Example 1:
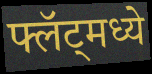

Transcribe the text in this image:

फ्लॅट्मध्ये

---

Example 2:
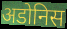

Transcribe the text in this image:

अडोनिस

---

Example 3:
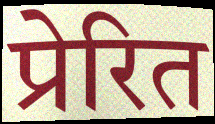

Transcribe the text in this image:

प्रेरित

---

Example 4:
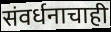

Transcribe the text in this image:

संवर्धनाचाही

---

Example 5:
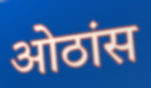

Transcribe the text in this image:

ओठांस